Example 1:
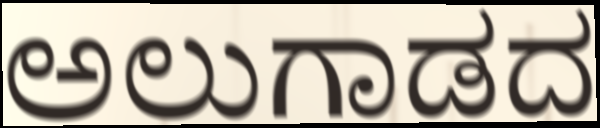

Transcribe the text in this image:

ಅಲುಗಾಡದ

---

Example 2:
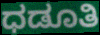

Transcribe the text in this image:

ಧಡೂತಿ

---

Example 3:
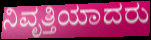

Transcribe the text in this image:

ನಿವೃತ್ತಿಯಾದರು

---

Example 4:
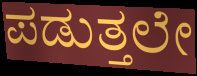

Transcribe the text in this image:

ಪಡುತ್ತಲೇ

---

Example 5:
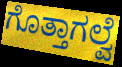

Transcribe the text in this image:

ಗೊತ್ತಾಗಲ್ವೆ